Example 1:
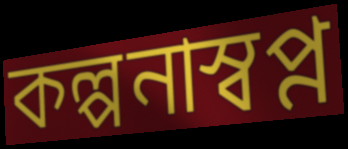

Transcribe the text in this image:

কল্পনাস্বপ্ন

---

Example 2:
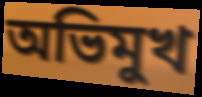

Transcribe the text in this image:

অভিমুখ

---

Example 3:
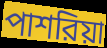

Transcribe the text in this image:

পাশরিয়া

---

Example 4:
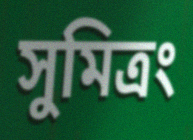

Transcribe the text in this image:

সুমিত্রং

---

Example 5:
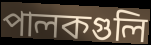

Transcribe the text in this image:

পালকগুলি